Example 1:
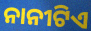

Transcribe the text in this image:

ନାନୀଟିଏ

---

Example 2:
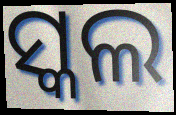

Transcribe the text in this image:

ସ୍କଲ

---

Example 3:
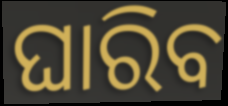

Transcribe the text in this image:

ଘାରିବ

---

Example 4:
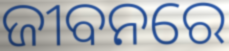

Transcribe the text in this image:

ଜୀବନରେ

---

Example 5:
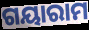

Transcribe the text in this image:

ଗୟାରାମ